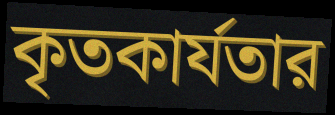
কৃতকার্যতার